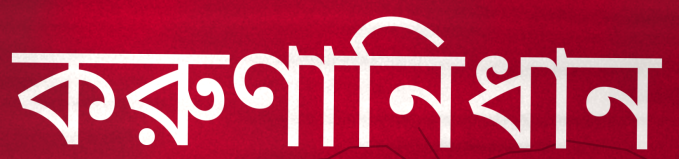
করুণানিধান